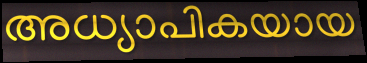
അധ്യാപികയായ